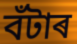
বঁটাৰ